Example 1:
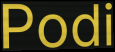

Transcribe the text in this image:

Podi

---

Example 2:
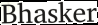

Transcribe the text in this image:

Bhasker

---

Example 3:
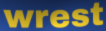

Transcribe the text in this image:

wrest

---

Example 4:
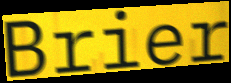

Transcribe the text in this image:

Brier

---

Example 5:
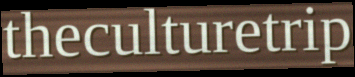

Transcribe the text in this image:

theculturetrip